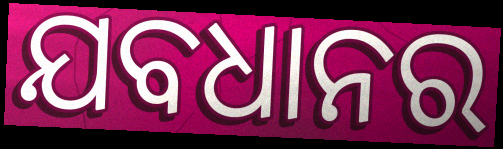
ଯବଧାନର